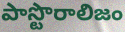
పాస్టొరాలిజం